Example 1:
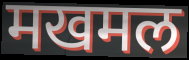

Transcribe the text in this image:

मखमल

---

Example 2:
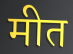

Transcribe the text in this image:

मीत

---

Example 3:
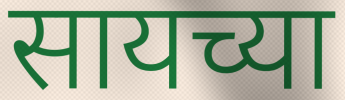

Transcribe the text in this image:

सायच्या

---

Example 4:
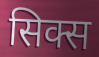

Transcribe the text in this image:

सिक्स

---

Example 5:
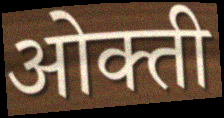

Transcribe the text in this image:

ओक्ती